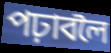
পঢ়াবলৈ